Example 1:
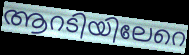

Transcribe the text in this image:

ആറടിയിലേറെ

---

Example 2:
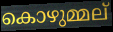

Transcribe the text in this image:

കൊഴുമ്മല്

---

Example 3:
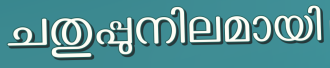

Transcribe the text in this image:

ചതുപ്പുനിലമായി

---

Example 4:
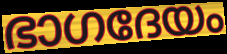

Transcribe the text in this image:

ഭാഗദേയം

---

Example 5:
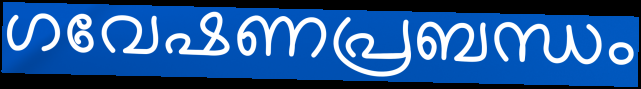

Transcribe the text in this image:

ഗവേഷണപ്രബന്ധം